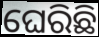
ଘେରିଛି